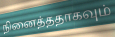
நினைத்ததாகவும்